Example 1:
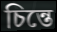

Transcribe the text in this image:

চিন্তে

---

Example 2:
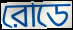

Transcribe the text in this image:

রোডে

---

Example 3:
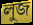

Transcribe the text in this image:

লুজ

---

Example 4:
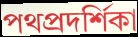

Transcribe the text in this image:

পথপ্রদর্শিকা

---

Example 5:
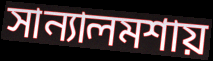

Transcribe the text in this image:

সান্যালমশায়